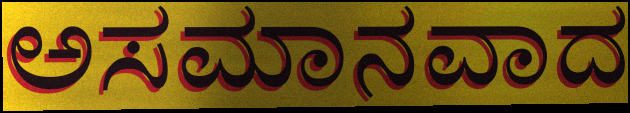
ಅಸಮಾನವಾದ